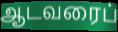
ஆடவரைப்